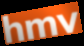
hmv